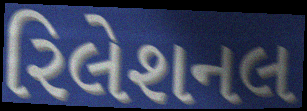
રિલેશનલ